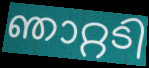
ഞാറ്റടി